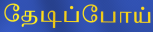
தேடிப்போய்